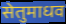
सेतुमाधव